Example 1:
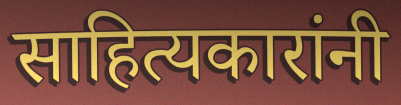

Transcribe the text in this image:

साहित्यकारांनी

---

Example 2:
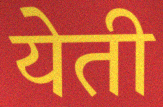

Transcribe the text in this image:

येती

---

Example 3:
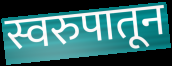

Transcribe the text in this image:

स्वरुपातून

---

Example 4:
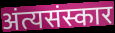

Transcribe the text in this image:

अंत्यसंस्कार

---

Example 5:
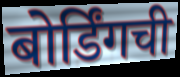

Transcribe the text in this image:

बोर्डिंगची